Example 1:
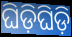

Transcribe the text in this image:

ଘିଡ଼ିଘିଡ଼ି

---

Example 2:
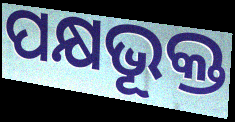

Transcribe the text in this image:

ପକ୍ଷଭୂକ୍ତ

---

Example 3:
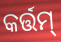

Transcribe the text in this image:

କର୍ତ୍ତମ୍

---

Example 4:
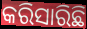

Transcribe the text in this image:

କରିସାରିଛି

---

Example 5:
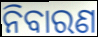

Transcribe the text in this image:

ନିବାରଣ